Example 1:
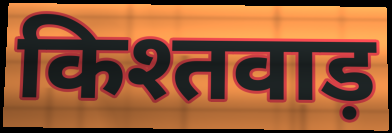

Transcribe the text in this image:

किश्तवाड़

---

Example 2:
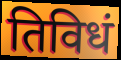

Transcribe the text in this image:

तिविधं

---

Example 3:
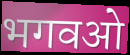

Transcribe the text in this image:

भगवओ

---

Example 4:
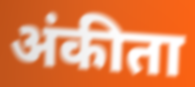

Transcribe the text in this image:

अंकीता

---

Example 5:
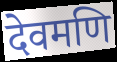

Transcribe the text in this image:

देवमणि